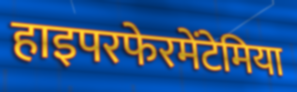
हाइपरफेरमेंटेमिया